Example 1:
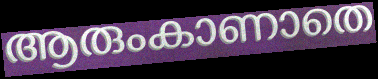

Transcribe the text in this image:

ആരുംകാണാതെ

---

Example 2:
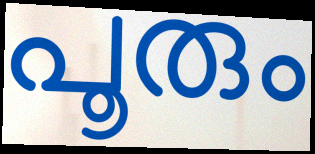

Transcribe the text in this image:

പൂരും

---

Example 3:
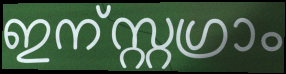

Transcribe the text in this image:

ഇന്സ്റ്റഗ്രാം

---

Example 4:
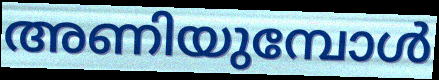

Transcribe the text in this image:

അണിയുമ്പോൾ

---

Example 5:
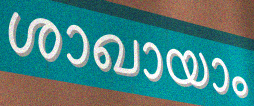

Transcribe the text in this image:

ശാഖായാം